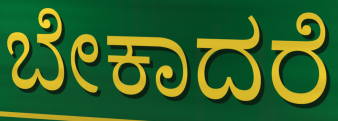
ಬೇಕಾದರೆ